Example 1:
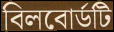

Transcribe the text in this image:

বিলবোর্ডটি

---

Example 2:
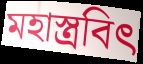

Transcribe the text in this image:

মহাস্ত্রবিৎ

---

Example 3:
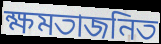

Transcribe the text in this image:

ক্ষমতাজনিত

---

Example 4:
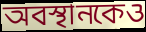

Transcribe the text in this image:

অবস্থানকেও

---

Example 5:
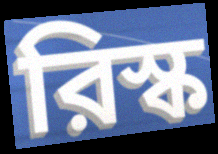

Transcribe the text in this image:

রিস্ক